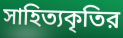
সাহিত্যকৃতির